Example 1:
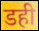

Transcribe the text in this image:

डही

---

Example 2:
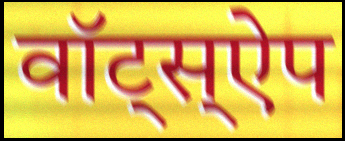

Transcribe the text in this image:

वॉट्स्ऐप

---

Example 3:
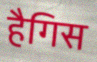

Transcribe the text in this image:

हैगिस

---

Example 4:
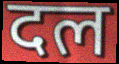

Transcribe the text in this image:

दल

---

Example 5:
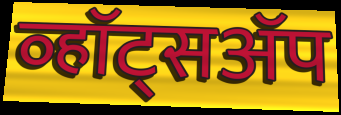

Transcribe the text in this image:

व्हॉट्सॲप